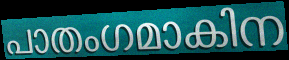
പാതംഗമാകിന